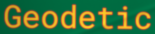
Geodetic